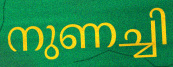
നുണച്ചി